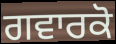
ਗਵਾਰਕੋ